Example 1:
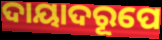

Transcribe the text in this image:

ଦାୟାଦରୂପେ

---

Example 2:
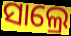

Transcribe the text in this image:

ସାଲ୍ରେ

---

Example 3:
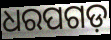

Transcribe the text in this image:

ଧରପଗଡ଼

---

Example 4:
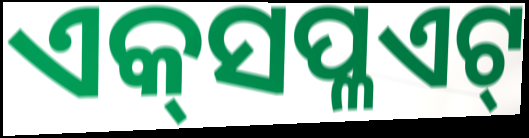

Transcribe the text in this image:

ଏକ୍‍ସପ୍ଳଏଟ୍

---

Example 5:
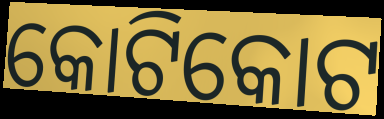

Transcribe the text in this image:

କୋଟିକୋଟ